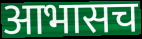
आभासच